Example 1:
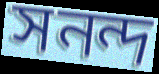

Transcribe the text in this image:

সনন্দ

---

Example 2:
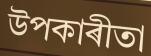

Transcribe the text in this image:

উপকাৰীতা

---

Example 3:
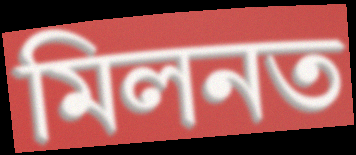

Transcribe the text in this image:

মিলনত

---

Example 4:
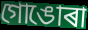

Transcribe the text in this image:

গোঙোৰা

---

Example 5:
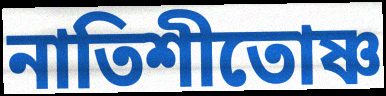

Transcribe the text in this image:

নাতিশীতোষ্ণ